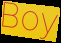
Boy